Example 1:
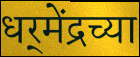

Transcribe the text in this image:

धर्मेंद्रच्या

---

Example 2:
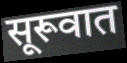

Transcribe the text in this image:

सूरूवात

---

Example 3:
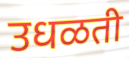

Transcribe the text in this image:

उधळती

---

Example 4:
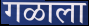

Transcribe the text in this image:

गळाला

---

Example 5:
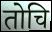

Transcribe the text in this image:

तोचि